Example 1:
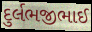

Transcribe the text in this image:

દુર્લભજીભાઈ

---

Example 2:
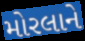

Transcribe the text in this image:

મોરલાને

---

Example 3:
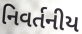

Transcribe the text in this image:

નિવર્તનીય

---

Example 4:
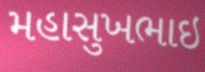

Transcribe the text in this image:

મહાસુખભાઇ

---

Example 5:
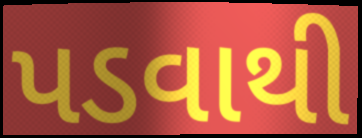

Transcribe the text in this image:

પડવાથી